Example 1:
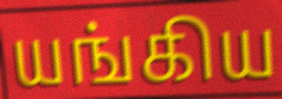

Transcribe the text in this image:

யங்கிய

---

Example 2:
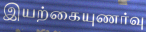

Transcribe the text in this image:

இயற்கையுணர்வு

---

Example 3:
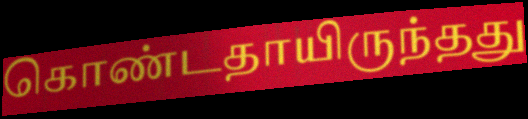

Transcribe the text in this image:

கொண்டதாயிருந்தது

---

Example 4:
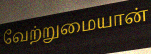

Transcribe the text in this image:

வேற்றுமையான்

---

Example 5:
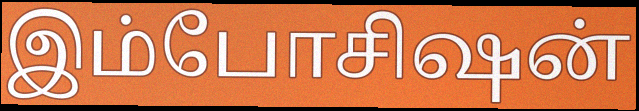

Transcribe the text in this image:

இம்போசிஷன்